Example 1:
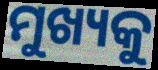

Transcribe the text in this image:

ମୁଖ୍ୟକୁ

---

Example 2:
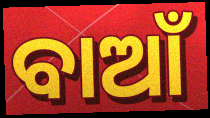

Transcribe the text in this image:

ବାଆଁ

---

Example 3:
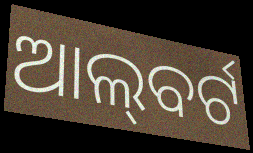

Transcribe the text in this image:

ଆଲ୍‌ବର୍ଟ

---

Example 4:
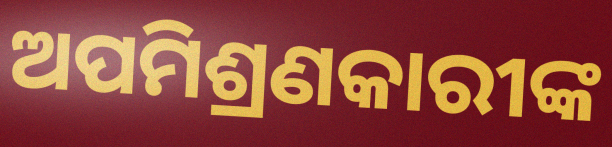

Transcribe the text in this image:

ଅପମିଶ୍ରଣକାରୀଙ୍କ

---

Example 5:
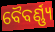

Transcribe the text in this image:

ବୈବର୍ଣ୍ଣ୍ୟ